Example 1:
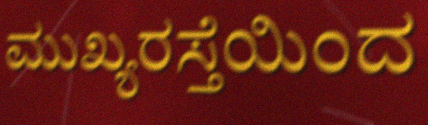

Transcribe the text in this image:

ಮುಖ್ಯರಸ್ತೆಯಿಂದ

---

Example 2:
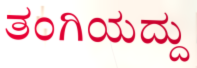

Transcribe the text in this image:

ತಂಗಿಯದ್ದು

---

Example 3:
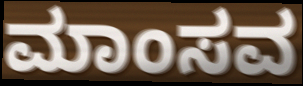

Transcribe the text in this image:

ಮಾಂಸವ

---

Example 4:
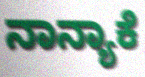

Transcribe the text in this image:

ನಾನ್ಯಾಕೆ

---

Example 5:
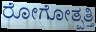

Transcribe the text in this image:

ರೋಗೋತ್ಪತ್ತಿ